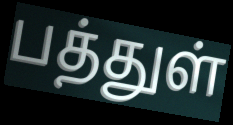
பத்துள்